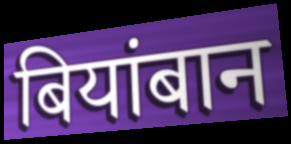
बियांबान